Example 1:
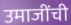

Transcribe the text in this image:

उमाजींची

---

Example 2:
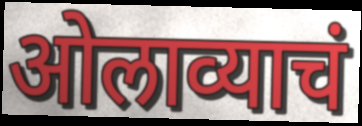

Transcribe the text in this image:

ओलाव्याचं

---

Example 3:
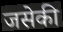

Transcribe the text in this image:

जसेकी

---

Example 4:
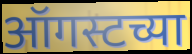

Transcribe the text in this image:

ऑगस्टच्या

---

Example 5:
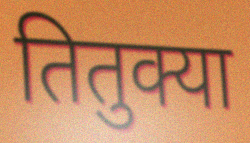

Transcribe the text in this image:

तितुक्या